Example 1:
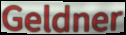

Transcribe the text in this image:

Geldner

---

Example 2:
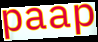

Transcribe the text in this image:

paap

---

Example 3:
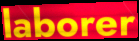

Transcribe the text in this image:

laborer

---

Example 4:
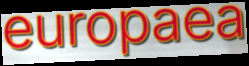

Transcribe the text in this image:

europaea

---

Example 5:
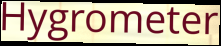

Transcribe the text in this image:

Hygrometer